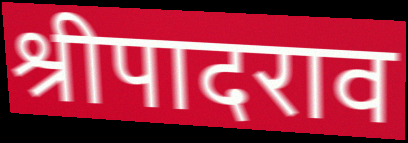
श्रीपादराव